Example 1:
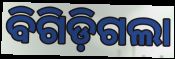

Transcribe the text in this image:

ବିଗିଡ଼ିଗଲା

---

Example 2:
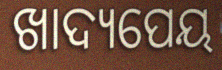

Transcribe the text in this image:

ଖାଦ୍ୟପେୟ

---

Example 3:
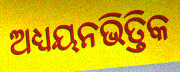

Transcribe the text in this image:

ଅଧ୍ୟୟନଭିତ୍ତିକ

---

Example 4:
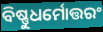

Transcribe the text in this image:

ବିଷ୍ଣୁଧର୍ମୋତ୍ତରଂ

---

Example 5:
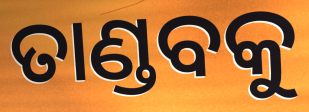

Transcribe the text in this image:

ତାଣ୍ଡବକୁ